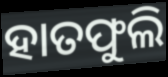
ହାତଫୁଲି